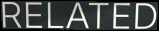
RELATED